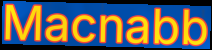
Macnabb